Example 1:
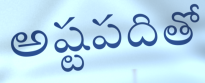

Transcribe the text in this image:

అష్టపదితో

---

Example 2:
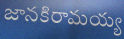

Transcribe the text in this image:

జానకిరామయ్య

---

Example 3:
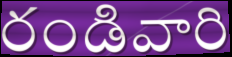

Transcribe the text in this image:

రండివారి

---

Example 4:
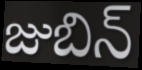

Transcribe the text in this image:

జుబిన్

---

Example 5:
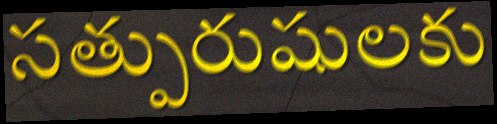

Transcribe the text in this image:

సత్పురుషులకు